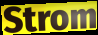
Strom